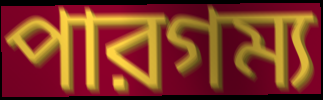
পারগম্য